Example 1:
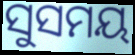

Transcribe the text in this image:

ସୁସମୟ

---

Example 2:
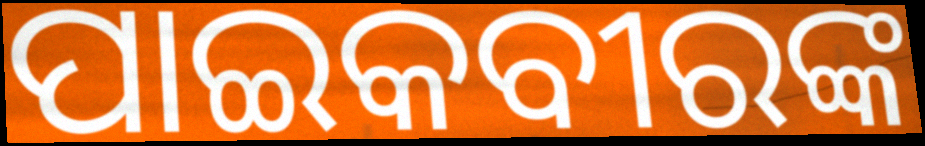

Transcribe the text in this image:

ପାଇକବୀରଙ୍କ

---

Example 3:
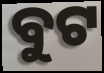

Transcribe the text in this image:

ବୁଟ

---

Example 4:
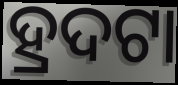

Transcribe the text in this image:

ହ୍ରଦଟା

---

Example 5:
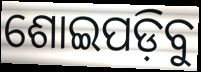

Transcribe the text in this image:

ଶୋଇପଡ଼ିବୁ